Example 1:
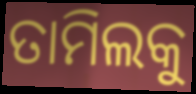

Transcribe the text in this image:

ତାମିଲକୁ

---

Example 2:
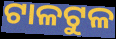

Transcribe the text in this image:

ଟାଳଟୁଳ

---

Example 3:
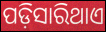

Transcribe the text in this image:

ପଡ଼ିସାରିଥାଏ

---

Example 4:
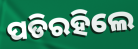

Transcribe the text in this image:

ପଡିରହିଲେ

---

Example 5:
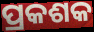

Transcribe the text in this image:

ପ୍ରକଶକ